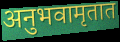
अनुभवामृतात